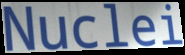
Nuclei